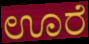
ಊರೆ